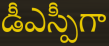
డీఎస్పీగా